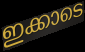
ഇക്കാടെ